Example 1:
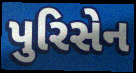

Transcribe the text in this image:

પુરિસેન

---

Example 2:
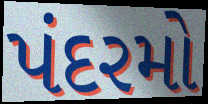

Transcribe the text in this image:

પંદરમો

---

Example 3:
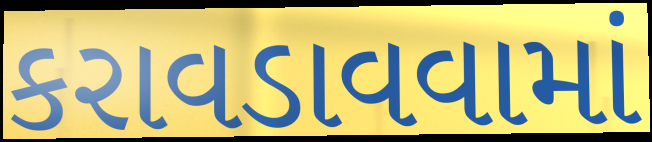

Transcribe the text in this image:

કરાવડાવવામાં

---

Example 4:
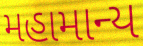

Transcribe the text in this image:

મહામાન્ય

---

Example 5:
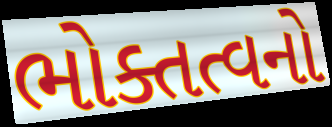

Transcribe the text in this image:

ભોક્તત્વનો